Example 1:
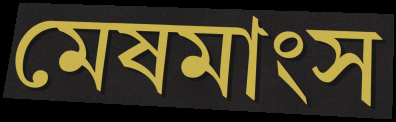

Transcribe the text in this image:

মেষমাংস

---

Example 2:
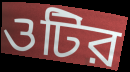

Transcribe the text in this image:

ওটির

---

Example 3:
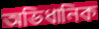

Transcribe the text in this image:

অভিধানিক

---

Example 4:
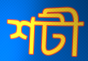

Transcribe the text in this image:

শটী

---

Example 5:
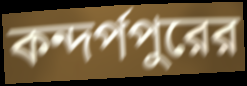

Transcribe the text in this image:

কন্দর্পপুরের